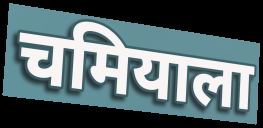
चमियाला